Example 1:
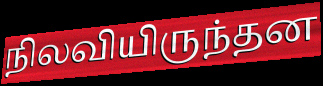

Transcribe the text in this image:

நிலவியிருந்தன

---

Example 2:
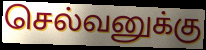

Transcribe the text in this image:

செல்வனுக்கு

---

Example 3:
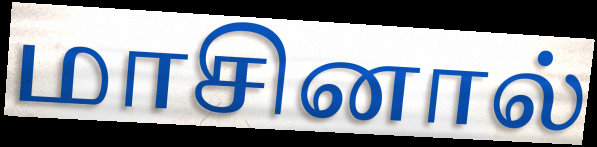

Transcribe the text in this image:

மாசினால்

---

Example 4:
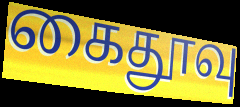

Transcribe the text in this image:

கைதூவு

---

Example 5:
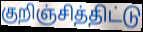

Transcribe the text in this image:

குறிஞ்சித்திட்டு